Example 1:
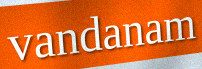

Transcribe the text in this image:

vandanam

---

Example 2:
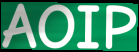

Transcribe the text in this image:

AOIP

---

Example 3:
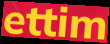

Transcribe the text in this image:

ettim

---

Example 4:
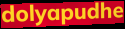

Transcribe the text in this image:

dolyapudhe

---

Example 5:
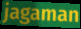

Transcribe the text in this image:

jagaman